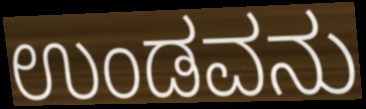
ಉಂಡವನು